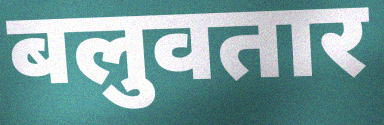
बलुवतार